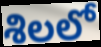
శిలలో